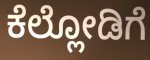
ಕೆಲ್ಲೋಡಿಗೆ